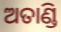
ଅତାଣ୍ଡି